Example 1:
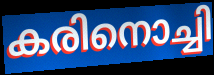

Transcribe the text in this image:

കരിനൊച്ചി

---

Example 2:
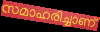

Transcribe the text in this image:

സമാഹരിച്ചാണ്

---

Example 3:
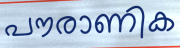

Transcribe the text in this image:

പൗരാണിക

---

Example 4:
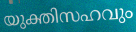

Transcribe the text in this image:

യുക്തിസഹവും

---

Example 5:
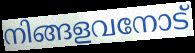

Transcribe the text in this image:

നിങ്ങളവനോട്